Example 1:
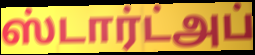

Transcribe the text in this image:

ஸ்டார்ட்அப்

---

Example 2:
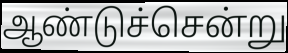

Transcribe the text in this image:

ஆண்டுச்சென்று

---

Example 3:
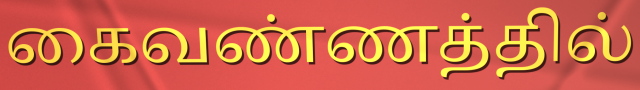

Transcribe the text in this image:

கைவண்ணத்தில்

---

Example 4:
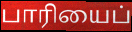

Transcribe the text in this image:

பாரியைப்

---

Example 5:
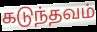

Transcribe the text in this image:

கடுந்தவம்